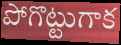
పోగొట్టుగాక